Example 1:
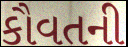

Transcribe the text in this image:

કૌવતની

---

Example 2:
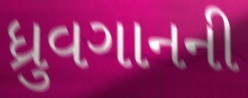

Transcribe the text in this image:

ધ્રુવગાનની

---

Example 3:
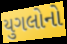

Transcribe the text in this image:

યુગલોનો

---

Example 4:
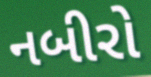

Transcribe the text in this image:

નબીરો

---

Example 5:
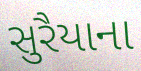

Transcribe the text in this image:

સુરૈયાના